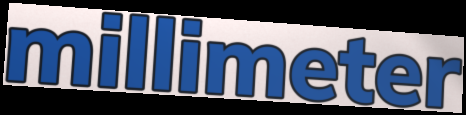
millimeter